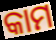
କାମ